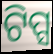
ଟିପ୍ସ